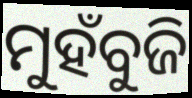
ମୁହଁବୁଜି